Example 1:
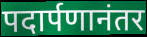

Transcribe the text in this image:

पदार्पणानंतर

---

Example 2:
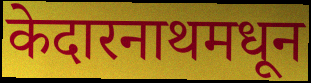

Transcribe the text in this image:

केदारनाथमधून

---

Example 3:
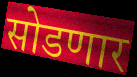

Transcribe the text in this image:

सोडणार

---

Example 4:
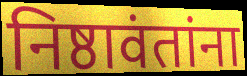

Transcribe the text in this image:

निष्ठावंतांना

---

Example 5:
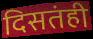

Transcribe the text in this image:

दिसतंही